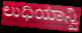
ಲುಧಿಯಾನ್ವಿ